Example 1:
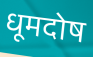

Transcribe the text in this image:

धूमदोष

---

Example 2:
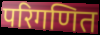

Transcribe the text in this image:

परिगणित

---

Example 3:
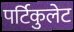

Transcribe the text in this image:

पर्टिकुलेट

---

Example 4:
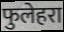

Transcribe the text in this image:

फुलेहरा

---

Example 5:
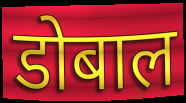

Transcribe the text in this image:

डोबाल